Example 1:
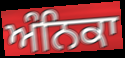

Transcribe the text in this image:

ਅੰਨਿਕਾ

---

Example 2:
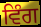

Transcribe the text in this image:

ਵਿੰਗ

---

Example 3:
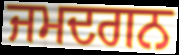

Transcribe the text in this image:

ਜਮਦਗਨ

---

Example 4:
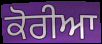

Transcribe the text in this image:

ਕੋਰੀਆ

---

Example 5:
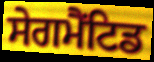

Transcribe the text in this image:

ਸੇਗਮੈਂਟਿਡ